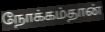
நோக்கம்தான்